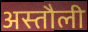
अस्तौली